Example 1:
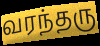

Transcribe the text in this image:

வரந்தரு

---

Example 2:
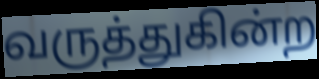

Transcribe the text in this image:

வருத்துகின்ற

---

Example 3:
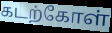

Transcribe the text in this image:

கடற்கோள்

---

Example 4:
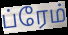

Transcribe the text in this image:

ப்ரேம்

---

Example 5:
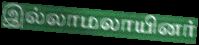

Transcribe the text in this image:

இல்லாமலாயினர்